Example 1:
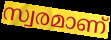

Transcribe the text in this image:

സ്വരമാണ്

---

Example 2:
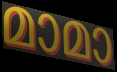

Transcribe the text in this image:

മാമാ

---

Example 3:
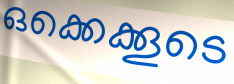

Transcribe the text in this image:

ഒക്കെക്കൂടെ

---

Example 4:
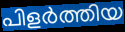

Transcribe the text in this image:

പിളർത്തിയ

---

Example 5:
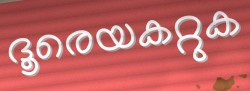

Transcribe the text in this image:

ദൂരെയകറ്റുക